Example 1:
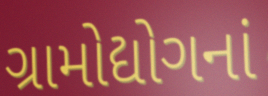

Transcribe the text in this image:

ગ્રામોદ્યોગનાં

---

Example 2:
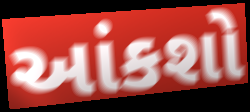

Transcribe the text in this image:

આંકશો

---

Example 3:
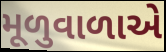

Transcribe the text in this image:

મૂળુવાળાએ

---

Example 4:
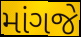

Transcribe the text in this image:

માંગજે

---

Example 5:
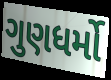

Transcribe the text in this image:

ગુણધર્મો